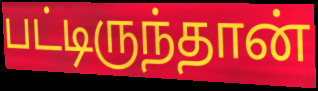
பட்டிருந்தான்